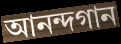
আনন্দগান